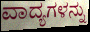
ವಾದ್ಯಗಳನ್ನು